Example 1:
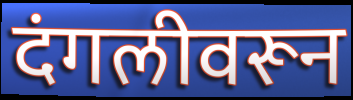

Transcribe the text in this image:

दंगलीवरून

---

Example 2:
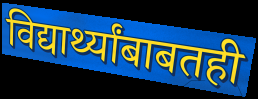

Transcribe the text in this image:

विद्यार्थ्यांबाबतही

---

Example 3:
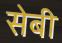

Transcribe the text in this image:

सेबी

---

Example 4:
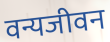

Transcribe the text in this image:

वन्यजीवन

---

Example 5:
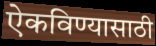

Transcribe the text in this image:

ऐकविण्यासाठी